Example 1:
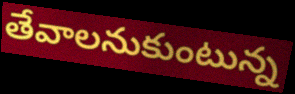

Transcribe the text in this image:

తేవాలనుకుంటున్న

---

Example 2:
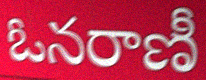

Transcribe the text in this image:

ఓనరాణీ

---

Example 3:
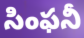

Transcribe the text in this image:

సింఫనీ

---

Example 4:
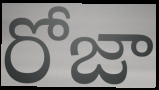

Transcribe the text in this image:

రోజా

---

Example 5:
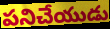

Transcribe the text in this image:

పనిచేయుడు